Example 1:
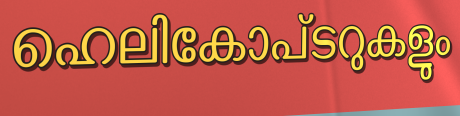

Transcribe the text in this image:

ഹെലികോപ്ടറുകളും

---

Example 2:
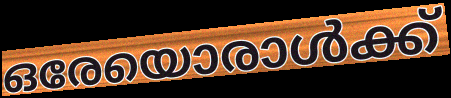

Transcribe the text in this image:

ഒരേയൊരാൾക്ക്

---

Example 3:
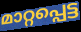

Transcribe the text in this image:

മാറ്റപ്പെട്ട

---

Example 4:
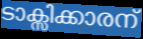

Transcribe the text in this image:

ടാക്സിക്കാരന്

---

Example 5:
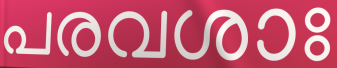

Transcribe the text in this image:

പരവശാഃ